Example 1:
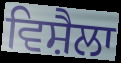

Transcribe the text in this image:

ਵਿਸ਼ੈਲਾ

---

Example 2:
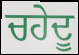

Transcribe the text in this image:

ਚਹੇਦੂ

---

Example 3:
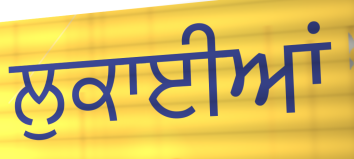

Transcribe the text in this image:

ਲੁਕਾਈਆਂ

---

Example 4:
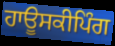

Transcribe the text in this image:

ਹਾਊਸਕੀਪਿੰਗ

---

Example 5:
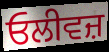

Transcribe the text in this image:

ਓਲੀਵਜ਼